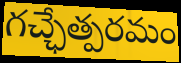
గచ్ఛేత్పరమం